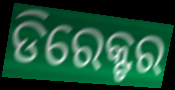
ଡିରେକ୍ଟର